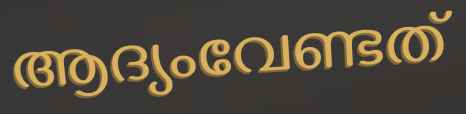
ആദ്യംവേണ്ടത്